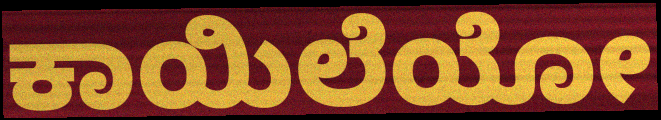
ಕಾಯಿಲೆಯೋ